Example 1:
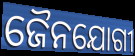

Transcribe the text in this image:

ଜୈନଯୋଗୀ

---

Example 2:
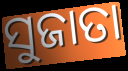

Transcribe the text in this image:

ସୁଜାତା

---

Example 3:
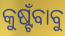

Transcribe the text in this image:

କୁଷ୍ଟଁବାବୁ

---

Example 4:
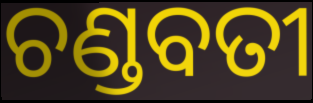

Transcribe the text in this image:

ଚଣ୍ଡବତୀ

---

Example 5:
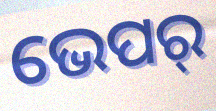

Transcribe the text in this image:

ଭେପର୍